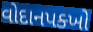
વોદાનપક્ખો